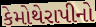
કેમોથેરાપીનો